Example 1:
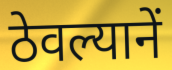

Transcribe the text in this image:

ठेवल्यानें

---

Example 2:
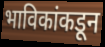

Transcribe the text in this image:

भाविकांकडून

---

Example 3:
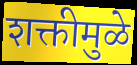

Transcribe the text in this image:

शक्तीमुळे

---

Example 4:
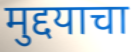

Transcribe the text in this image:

मुद्दयाचा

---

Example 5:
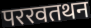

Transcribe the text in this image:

पररवतथन